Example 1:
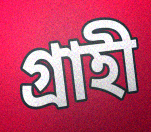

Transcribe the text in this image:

গ্রাহী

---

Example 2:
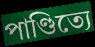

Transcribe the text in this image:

পাণ্ডিত্যে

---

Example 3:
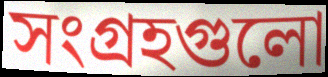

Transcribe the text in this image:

সংগ্রহগুলো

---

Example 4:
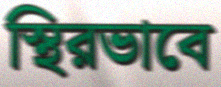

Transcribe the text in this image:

স্থিরভাবে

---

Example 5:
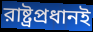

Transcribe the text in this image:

রাষ্ট্রপ্রধানই